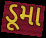
ડૂમા